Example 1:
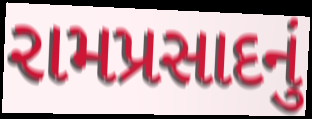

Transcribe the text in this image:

રામપ્રસાદનું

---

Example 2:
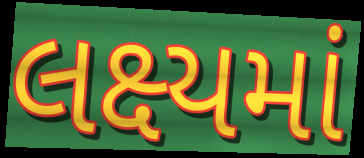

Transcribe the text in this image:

લક્ષ્યમાં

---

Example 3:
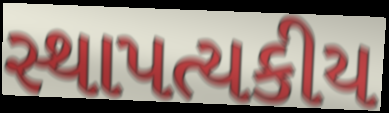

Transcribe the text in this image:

સ્થાપત્યકીય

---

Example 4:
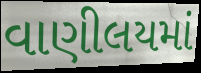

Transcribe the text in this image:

વાણીલયમાં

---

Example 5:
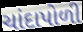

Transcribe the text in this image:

ચાંદાપોળી